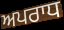
ਅਪਰਾਧ